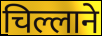
चिल्लाने